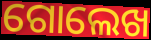
ଗୋଲେଖ